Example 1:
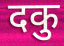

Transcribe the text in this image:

दकु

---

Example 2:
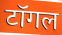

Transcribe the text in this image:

टॉगल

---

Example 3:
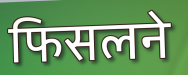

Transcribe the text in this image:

फिसलने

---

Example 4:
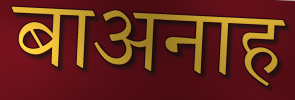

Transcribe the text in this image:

बाअनाह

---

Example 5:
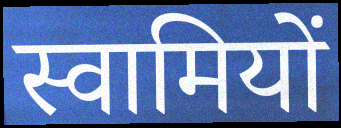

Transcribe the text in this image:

स्वामियों